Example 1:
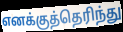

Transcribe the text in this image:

எனக்குத்தெரிந்து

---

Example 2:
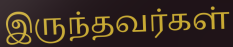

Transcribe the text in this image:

இருந்தவர்கள்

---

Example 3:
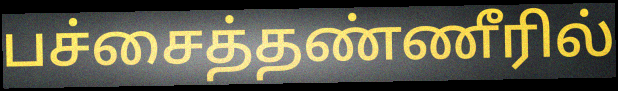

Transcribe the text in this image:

பச்சைத்தண்ணீரில்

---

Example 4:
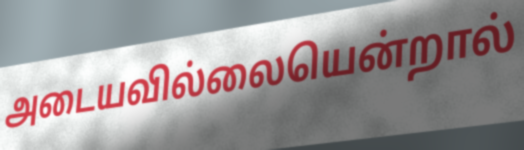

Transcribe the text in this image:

அடையவில்லையென்றால்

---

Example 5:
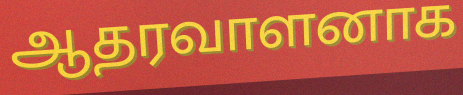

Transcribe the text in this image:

ஆதரவாளனாக